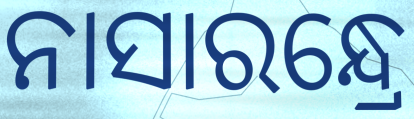
ନାସାରନ୍ଧ୍ରେ